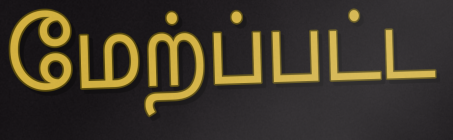
மேற்ப்பட்ட